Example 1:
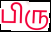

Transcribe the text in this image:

பிரு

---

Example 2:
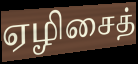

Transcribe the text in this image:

ஏழிசைத்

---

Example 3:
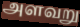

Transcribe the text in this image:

அளவறு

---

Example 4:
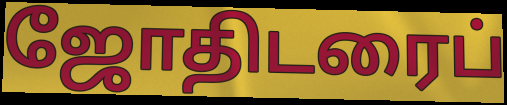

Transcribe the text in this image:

ஜோதிடரைப்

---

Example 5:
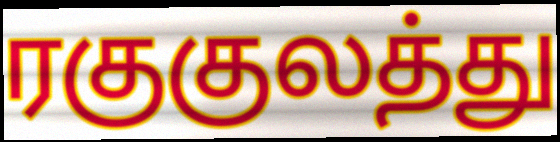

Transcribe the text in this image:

ரகுகுலத்து